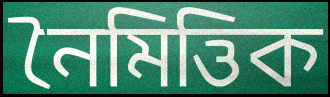
নৈমিত্তিক